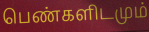
பெண்களிடமும்